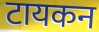
टायकन